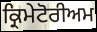
ਕ੍ਰਿਮੇਟੋਰੀਅਮ